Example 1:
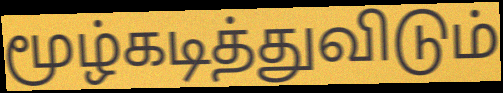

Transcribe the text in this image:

மூழ்கடித்துவிடும்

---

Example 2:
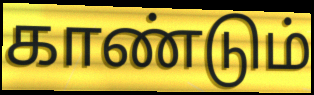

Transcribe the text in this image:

காண்டும்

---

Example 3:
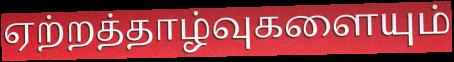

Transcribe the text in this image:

ஏற்றத்தாழ்வுகளையும்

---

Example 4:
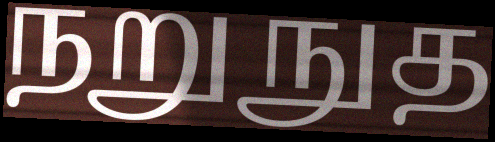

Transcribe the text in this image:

நறுநுத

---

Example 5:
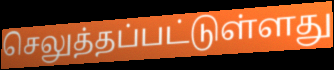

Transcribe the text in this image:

செலுத்தப்பட்டுள்ளது